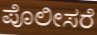
ಪೊಲೀಸರೆ